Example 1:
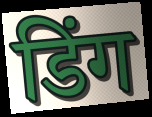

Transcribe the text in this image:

डिंग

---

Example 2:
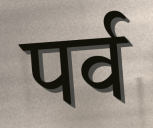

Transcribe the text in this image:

पर्व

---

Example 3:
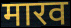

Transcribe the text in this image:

मारव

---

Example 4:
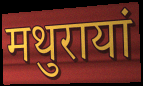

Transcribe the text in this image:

मथुरायां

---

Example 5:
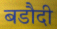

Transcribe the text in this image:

बडौदी